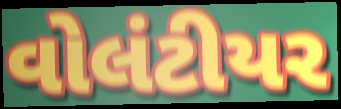
વોલંટીયર